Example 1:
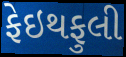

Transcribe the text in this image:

ફેઇથફુલી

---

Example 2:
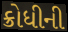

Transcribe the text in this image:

ક્રોધીની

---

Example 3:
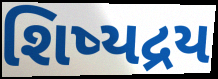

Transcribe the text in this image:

શિષ્યદ્રય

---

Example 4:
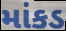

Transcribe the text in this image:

માંકડ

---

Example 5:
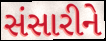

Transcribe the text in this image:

સંસારીને